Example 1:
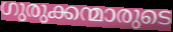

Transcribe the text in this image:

ഗുരുക്കന്മാരുടെ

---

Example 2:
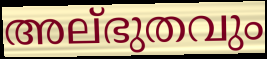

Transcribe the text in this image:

അല്ഭുതവും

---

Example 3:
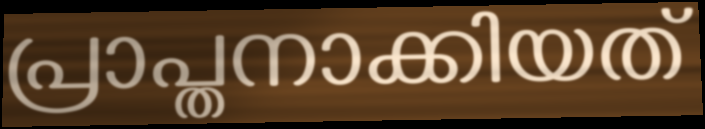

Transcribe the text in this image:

പ്രാപ്തനാക്കിയത്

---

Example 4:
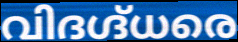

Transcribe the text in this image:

വിദഗ്ദ്ധരെ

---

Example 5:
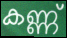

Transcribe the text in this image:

കണ്ണ്